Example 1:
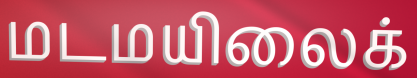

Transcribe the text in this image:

மடமயிலைக்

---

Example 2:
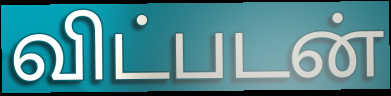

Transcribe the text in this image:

விட்படன்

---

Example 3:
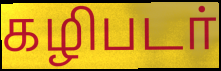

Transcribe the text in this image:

கழிபடர்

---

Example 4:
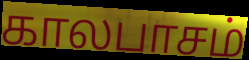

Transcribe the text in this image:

காலபாசம்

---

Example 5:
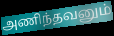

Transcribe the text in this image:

அணிந்தவனும்